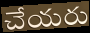
చేయరు